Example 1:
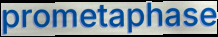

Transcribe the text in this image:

prometaphase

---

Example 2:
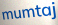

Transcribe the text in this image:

mumtaj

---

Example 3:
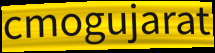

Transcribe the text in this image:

cmogujarat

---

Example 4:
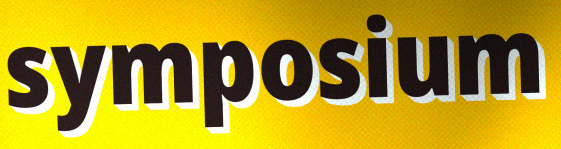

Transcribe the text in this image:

symposium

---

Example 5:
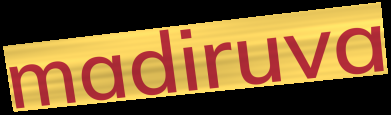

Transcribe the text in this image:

madiruva